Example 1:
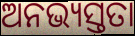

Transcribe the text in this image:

ଅନଭ୍ୟସ୍ତତା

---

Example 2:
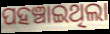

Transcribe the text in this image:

ପହଞ୍ଚାଇଥିଲା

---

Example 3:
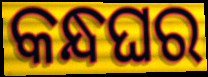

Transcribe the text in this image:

କନ୍ଧଘର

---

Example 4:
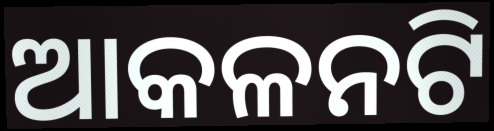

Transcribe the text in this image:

ଆକଳନଟି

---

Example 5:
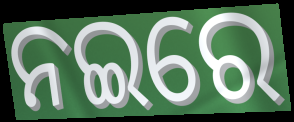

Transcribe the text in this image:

ନଇରେ